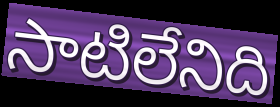
సాటిలేనిది